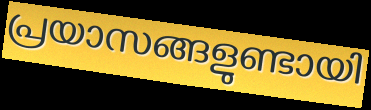
പ്രയാസങ്ങളുണ്ടായി